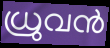
ധ്രുവൻ